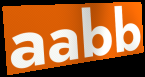
aabb